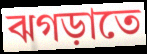
ঝগড়াতে